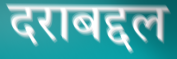
दराबद्दल